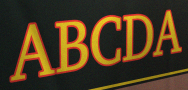
ABCDA